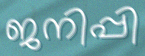
ജനിപ്പി